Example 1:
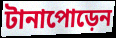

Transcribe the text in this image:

টানাপোড়েন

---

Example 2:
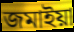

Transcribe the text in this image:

জমাইয়া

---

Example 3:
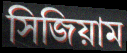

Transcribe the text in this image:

সিজিয়াম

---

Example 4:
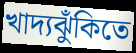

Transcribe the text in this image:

খাদ্যঝুঁকিতে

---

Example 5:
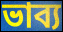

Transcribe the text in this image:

ভাব্য